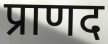
प्राणद